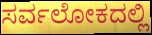
ಸರ್ವಲೋಕದಲ್ಲಿ